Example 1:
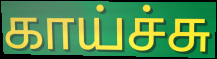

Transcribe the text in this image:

காய்ச்சு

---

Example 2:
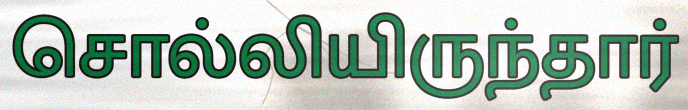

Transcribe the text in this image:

சொல்லியிருந்தார்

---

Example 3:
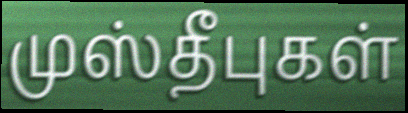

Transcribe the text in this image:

முஸ்தீபுகள்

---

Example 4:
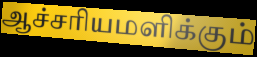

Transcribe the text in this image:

ஆச்சரியமளிக்கும்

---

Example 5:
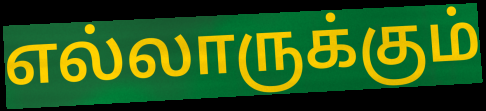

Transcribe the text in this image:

எல்லாருக்கும்